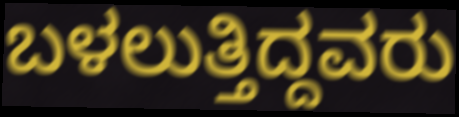
ಬಳಲುತ್ತಿದ್ದವರು